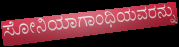
ಸೋನಿಯಾಗಾಂಧಿಯವರನ್ನು